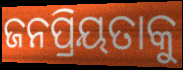
ଜନପ୍ରିୟତାକୁ